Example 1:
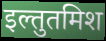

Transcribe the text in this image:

इल्तुतमिश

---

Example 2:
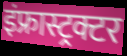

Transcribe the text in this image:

इंफ्रास्ट्रक्टर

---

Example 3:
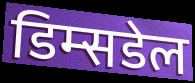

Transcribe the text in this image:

डिम्सडेल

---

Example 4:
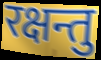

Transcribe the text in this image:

रक्षन्तु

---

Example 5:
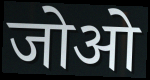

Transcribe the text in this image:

जोओ